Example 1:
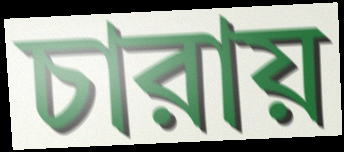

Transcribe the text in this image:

চারায়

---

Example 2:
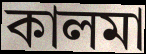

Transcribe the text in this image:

কালমা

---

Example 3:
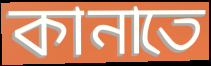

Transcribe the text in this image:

কানাতে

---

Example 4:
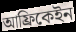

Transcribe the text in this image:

আফ্রিকেইন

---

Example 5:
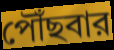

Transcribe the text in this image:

পৌঁছবার